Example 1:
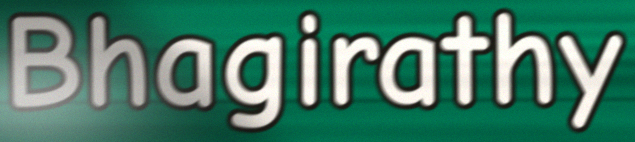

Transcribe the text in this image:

Bhagirathy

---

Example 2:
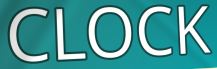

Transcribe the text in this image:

CLOCK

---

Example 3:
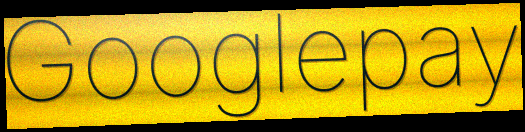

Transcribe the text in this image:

Googlepay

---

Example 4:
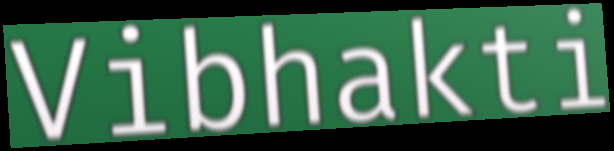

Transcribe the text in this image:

Vibhakti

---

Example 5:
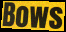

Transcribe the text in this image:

Bows